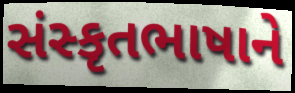
સંસ્કૃતભાષાને